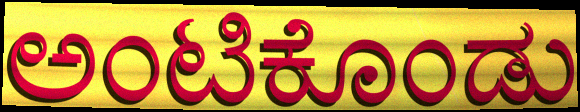
ಅಂಟಿಕೊಂಡು